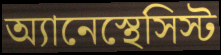
অ্যানেস্থেসিস্ট